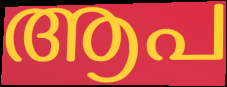
ആപ